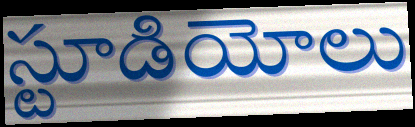
స్టూడియోలు